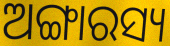
ଅଙ୍ଗାରସ୍ୟ